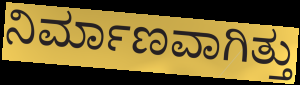
ನಿರ್ಮಾಣವಾಗಿತ್ತು